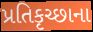
પ્રતિકૃચ્છાના